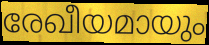
രേഖീയമായും